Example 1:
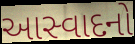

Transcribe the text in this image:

આસ્વાદનો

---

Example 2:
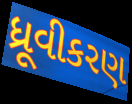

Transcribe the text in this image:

ધ્રૂવીકરણ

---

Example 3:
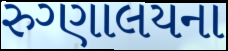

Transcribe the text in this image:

રુગ્ણાલયના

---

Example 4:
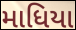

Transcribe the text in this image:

માધિયા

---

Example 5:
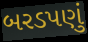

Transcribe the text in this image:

બરડપણું